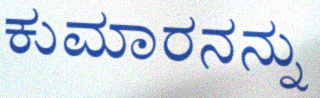
ಕುಮಾರನನ್ನು